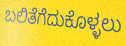
ಬಲಿತೆಗೆದುಕೊಳ್ಳಲು